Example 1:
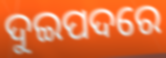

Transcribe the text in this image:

ଦୁଇପଦରେ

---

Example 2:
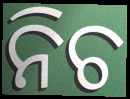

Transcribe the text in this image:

ନିଚ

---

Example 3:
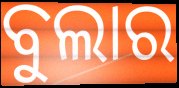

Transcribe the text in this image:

ବୁଲାର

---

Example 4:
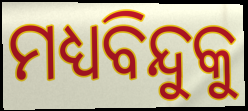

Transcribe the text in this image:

ମଧ୍ୟବିନ୍ଦୁକୁ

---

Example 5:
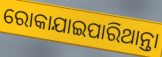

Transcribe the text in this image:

ରୋକାଯାଇପାରିଥାନ୍ତା